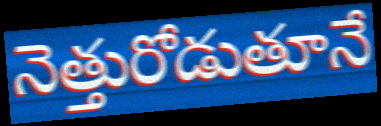
నెత్తురోడుతూనే